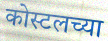
कोस्टलच्या